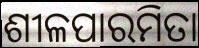
ଶୀଳପାରମିତା